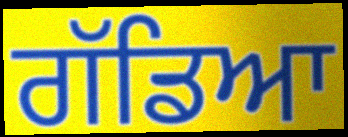
ਗੱਡਿਆ